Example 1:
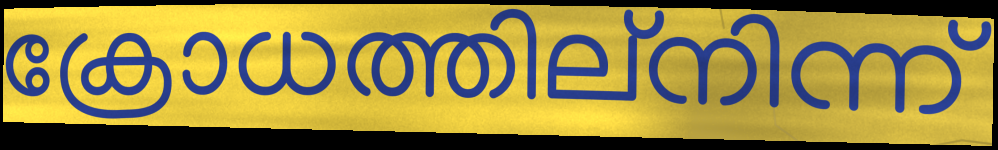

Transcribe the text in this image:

ക്രോധത്തില്നിന്ന്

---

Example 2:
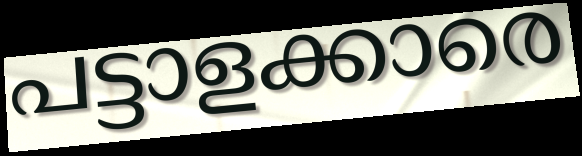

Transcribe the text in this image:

പട്ടാളക്കാരെ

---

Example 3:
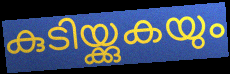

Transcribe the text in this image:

കുടിയ്ക്കുകയും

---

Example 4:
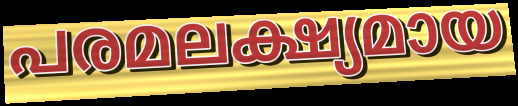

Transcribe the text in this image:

പരമലക്ഷ്യമായ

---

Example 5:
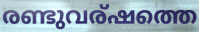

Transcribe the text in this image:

രണ്ടുവര്ഷത്തെ